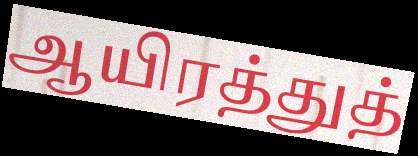
ஆயிரத்துத்